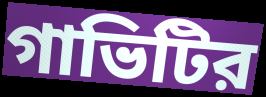
গাভিটির